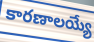
కారణాలయ్యే